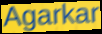
Agarkar